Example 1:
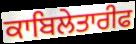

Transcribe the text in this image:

ਕਾਬਿਲੇਤਾਰੀਫ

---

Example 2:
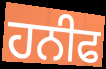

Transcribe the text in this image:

ਹਨੀਫ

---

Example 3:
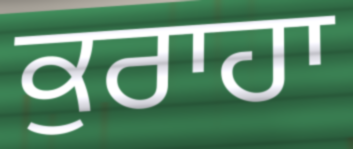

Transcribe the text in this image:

ਕੁਰਾਹਾ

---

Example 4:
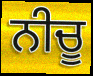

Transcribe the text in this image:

ਨੀਚੂ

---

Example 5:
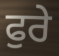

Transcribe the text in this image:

ਫੁਰੇ